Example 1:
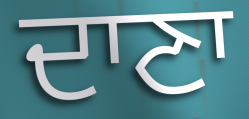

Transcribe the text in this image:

ਦਾਣਾ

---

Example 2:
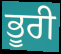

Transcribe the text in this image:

ਭੂਰੀ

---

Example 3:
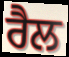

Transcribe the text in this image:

ਰੈਲ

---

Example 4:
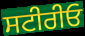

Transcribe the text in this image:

ਸਟੀਰੀਓ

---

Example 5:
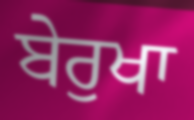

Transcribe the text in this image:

ਬੇਰੁਖਾ